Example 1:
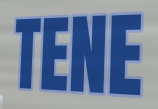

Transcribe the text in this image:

TENE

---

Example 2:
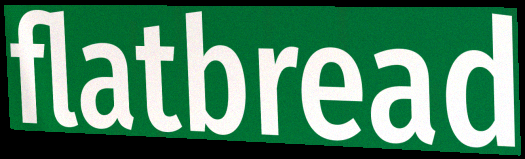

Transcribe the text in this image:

flatbread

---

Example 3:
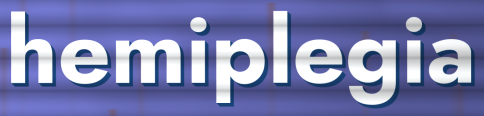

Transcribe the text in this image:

hemiplegia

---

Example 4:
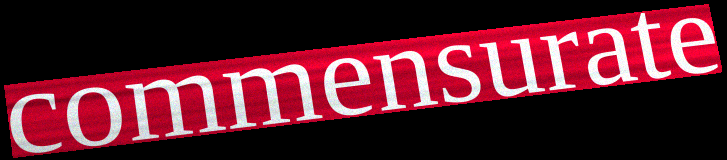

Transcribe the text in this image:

commensurate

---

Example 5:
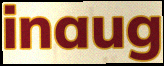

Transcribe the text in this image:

inaug